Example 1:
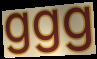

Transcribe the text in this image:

ggg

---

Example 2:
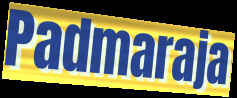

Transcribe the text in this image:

Padmaraja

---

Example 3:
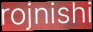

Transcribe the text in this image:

rojnishi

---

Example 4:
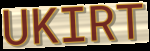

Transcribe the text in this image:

UKIRT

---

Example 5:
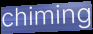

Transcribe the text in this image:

chiming